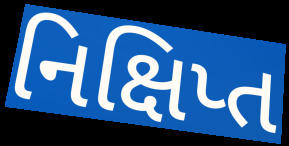
નિક્ષિપ્ત